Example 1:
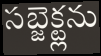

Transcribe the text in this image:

సబ్జెక్ట్లను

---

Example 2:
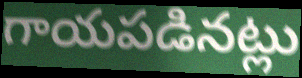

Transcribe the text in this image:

గాయపడినట్లు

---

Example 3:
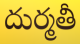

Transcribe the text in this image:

దుర్మతీ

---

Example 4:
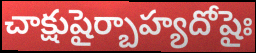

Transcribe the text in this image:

చాక్షుషైర్బాహ్యదోషైః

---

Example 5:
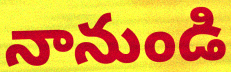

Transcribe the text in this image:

నానుండి